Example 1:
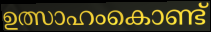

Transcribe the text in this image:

ഉത്സാഹംകൊണ്ട്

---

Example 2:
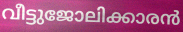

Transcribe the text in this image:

വീട്ടുജോലിക്കാരൻ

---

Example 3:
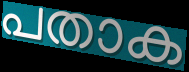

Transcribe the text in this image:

പതാക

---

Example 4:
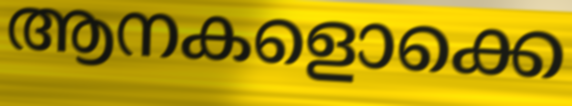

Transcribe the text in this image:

ആനകളൊക്കെ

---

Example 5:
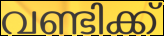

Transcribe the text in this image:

വണ്ടിക്ക്